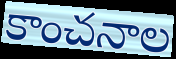
కాంచనాల